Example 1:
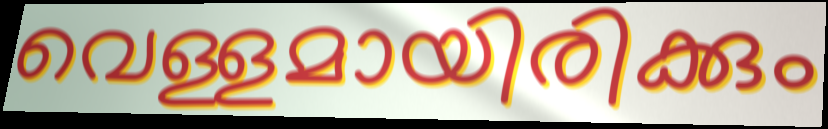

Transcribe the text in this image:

വെള്ളമായിരിക്കും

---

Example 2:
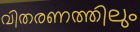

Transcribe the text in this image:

വിതരണത്തിലും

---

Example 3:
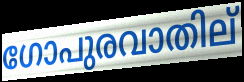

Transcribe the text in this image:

ഗോപുരവാതില്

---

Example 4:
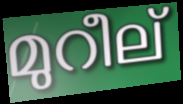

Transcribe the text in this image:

മുറീല്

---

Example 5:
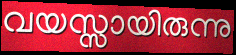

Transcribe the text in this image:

വയസ്സായിരുന്നു